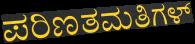
ಪರಿಣತಮತಿಗಳ್